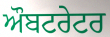
ਔਬਟਰੇਟਰ